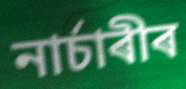
নাৰ্চাৰীৰ